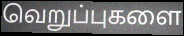
வெறுப்புகளை